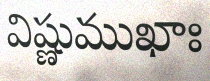
విష్ణుముఖాః